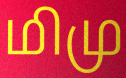
மிமு